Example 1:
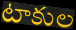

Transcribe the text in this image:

టాకుల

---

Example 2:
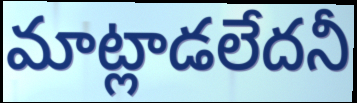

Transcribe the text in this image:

మాట్లాడలేదనీ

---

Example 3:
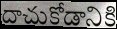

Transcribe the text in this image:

దాచుకోడానికి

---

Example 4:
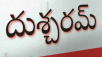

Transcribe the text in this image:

దుశ్చరమ్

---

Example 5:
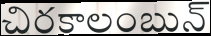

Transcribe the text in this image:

చిరకాలంబున్